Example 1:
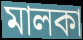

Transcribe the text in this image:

মালকা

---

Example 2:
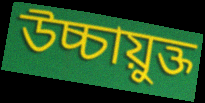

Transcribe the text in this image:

উচ্চায়ুক্ত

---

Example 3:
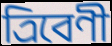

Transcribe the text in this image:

ত্ৰিবেণী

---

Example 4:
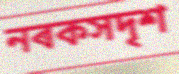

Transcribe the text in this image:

নৰকসদৃশ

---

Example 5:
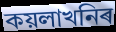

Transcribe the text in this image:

কয়লাখনিৰ